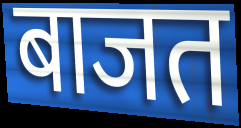
बाजत